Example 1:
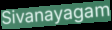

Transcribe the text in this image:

Sivanayagam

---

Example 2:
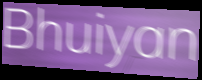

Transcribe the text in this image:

Bhuiyan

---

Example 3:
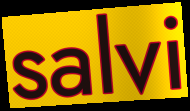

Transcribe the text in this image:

salvi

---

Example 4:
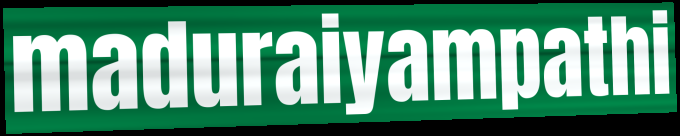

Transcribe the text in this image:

maduraiyampathi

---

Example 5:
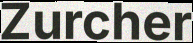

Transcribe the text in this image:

Zurcher